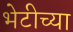
भेटीच्या